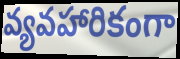
వ్యవహారికంగా